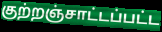
குற்றஞ்சாட்டப்பட்ட